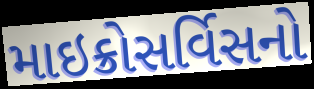
માઇક્રોસર્વિસનો